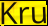
Kru